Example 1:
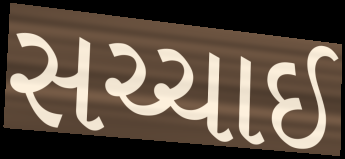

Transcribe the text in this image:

સચ્ચાઈ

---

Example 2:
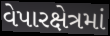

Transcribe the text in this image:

વેપારક્ષેત્રમાં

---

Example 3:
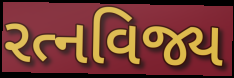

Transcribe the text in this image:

રત્નવિજ્ય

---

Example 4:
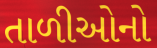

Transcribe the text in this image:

તાળીઓનો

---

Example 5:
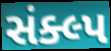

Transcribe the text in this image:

સંક્લ્પ